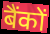
बैंकों